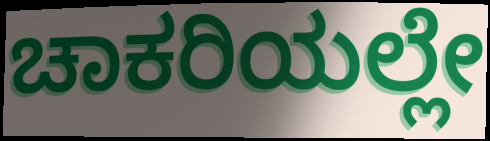
ಚಾಕರಿಯಲ್ಲೇ